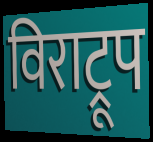
विराट्रूप